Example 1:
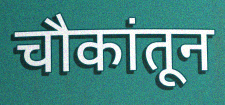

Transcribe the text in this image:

चौकांतून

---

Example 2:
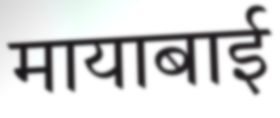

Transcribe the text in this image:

मायाबाई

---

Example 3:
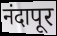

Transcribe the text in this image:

नंदापूर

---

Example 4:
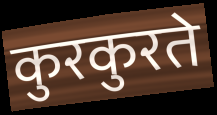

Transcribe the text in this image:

कुरकुरते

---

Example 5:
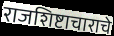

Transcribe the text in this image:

राजशिष्टाचाराचे